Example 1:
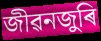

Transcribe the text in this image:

জীৱনজুৰি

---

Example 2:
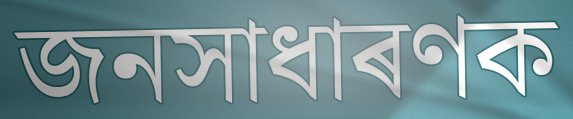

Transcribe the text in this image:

জনসাধাৰণক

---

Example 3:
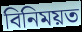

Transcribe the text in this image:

বিনিময়ত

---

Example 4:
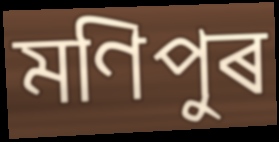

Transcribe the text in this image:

মণিপুৰ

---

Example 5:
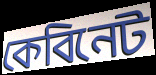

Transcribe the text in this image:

কেবিনেট